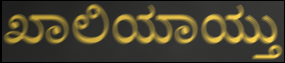
ಖಾಲಿಯಾಯ್ತು